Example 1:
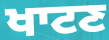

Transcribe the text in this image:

ਖਾਟਣ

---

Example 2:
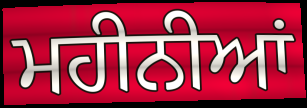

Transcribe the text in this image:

ਮਹੀਨੀਆਂ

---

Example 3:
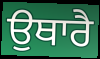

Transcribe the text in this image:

ਉਥਾਰੈ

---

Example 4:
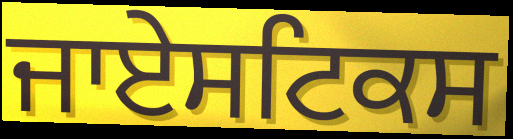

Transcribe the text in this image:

ਜਾਏਸਟਿਕਸ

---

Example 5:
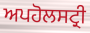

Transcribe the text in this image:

ਅਪਹੋਲਸਟ੍ਰੀ